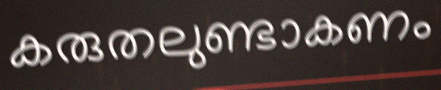
കരുതലുണ്ടാകണം